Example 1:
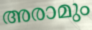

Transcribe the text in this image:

അരാമും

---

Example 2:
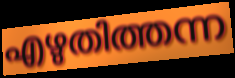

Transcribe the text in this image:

എഴുതിത്തന്ന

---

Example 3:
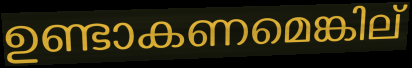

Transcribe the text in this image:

ഉണ്ടാകണമെങ്കില്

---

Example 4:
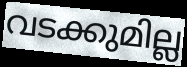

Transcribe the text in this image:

വടക്കുമില്ല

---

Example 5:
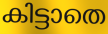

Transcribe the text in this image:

കിട്ടാതെ